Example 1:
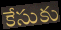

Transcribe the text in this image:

కేసుకు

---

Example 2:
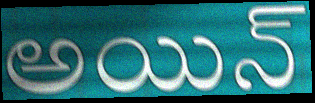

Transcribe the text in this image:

అయిన్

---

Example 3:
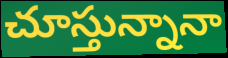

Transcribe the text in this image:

చూస్తున్నానా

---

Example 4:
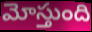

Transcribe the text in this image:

మోస్తుంది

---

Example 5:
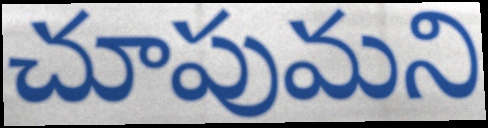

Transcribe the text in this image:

చూపుమని